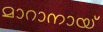
മാറാനായ്